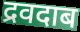
द्रवदाब